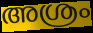
അശ്രം